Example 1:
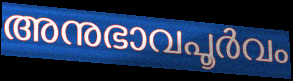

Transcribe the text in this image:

അനുഭാവപൂർവം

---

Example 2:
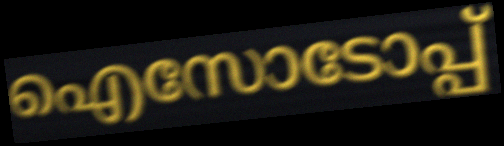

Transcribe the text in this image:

ഐസോടോപ്പ്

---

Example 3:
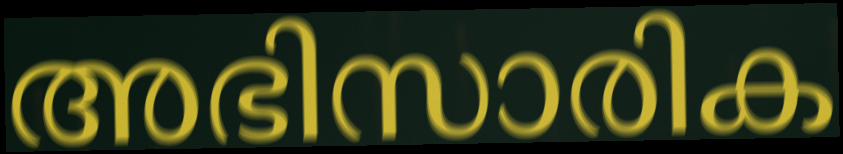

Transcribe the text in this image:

അഭിസാരിക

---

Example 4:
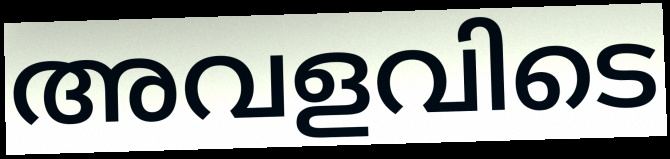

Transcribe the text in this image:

അവളവിടെ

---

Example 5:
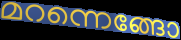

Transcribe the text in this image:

മറന്നെങ്ങോ